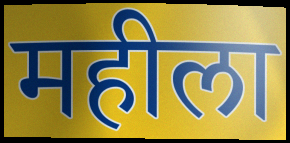
महीला